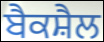
ਬੈਕਸ਼ੈਲ